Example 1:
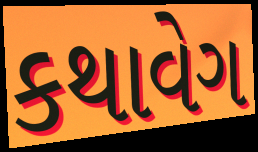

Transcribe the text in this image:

કથાવેગ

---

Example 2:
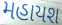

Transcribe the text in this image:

મહાયશ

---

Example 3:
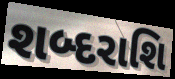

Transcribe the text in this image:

શબ્દરાશિ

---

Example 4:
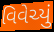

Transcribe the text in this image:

વિવેચ્યું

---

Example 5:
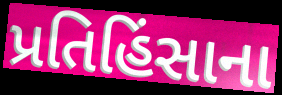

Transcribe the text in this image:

પ્રતિહિંસાના